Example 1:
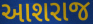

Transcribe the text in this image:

આશરાજ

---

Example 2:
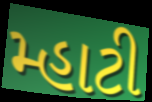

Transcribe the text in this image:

મ્હાટી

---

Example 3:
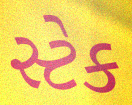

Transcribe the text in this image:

સ્ટેક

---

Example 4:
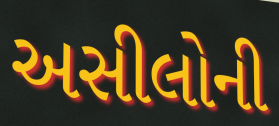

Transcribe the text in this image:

અસીલોની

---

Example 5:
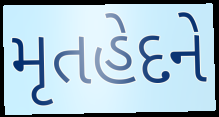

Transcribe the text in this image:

મૃતહેદને